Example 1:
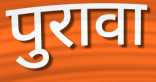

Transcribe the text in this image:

पुरावा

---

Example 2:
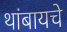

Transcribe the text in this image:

थांबायचे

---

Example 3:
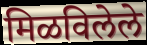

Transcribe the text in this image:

मिळविलेले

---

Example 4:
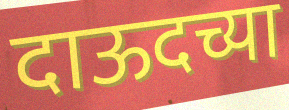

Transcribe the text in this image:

दाऊदच्या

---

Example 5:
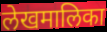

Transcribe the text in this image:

लेखमालिका